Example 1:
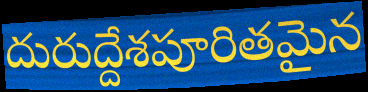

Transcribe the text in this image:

దురుద్దేశపూరితమైన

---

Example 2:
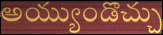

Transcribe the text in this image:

అయ్యుండొచ్చు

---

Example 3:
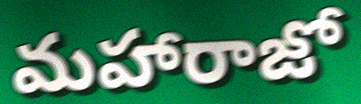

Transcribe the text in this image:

మహారాజో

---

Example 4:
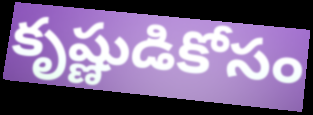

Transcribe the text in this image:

కృష్ణుడికోసం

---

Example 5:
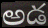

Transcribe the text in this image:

అడ